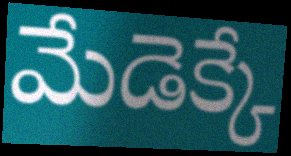
మేడెక్కే